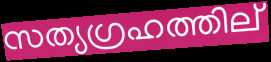
സത്യഗ്രഹത്തില്